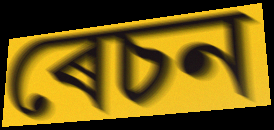
ৰেচন